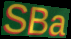
SBa